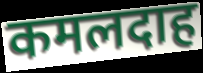
कमलदाह